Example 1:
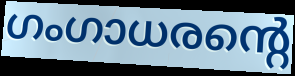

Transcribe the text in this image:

ഗംഗാധരന്റെ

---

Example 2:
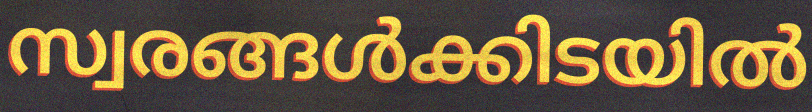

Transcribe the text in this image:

സ്വരങ്ങൾക്കിടയിൽ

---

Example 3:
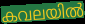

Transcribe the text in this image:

കവലയിൽ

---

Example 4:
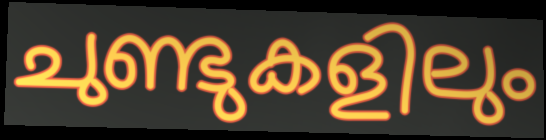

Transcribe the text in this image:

ചുണ്ടുകളിലും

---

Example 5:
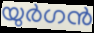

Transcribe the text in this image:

യുർഗൻ